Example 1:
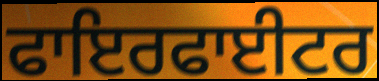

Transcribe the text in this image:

ਫਾਇਰਫਾਈਟਰ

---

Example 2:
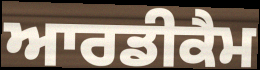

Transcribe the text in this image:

ਆਰਡੀਕੈਮ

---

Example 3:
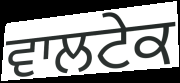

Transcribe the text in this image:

ਵਾਲਟੇਕ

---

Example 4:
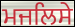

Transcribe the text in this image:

ਮਜਲਿਸੇ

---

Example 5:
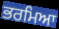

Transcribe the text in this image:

ਭਰਮਿਆ